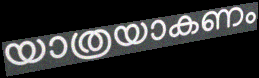
യാത്രയാകണം